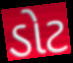
ડોટ